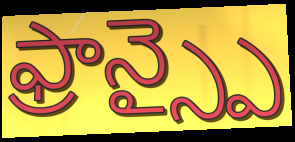
ఫ్రాన్స్పై